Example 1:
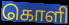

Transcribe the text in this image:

கொளி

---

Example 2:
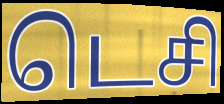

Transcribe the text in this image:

டெசி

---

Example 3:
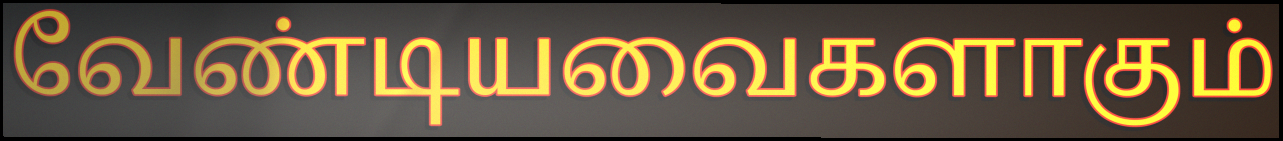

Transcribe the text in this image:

வேண்டியவைகளாகும்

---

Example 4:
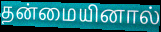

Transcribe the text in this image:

தன்மையினால்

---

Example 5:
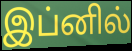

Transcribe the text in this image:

இப்னில்